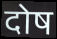
दोष